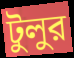
টুলুর